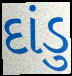
દાંડુ